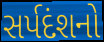
સર્પદંશનો